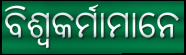
ବିଶ୍ଵକର୍ମାମାନେ